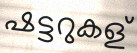
ഷട്ടറുകള്